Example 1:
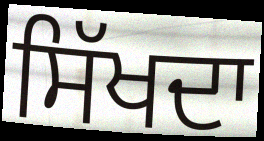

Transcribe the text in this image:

ਸਿੱਖਦਾ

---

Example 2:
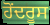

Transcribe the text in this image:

ਹੋਂਦਰੂਸ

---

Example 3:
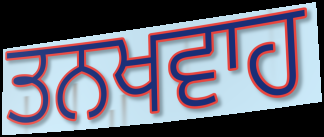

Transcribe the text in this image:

ਤਨਖਵਾਹ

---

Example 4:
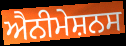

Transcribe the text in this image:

ਐਨੀਮੇਸ਼ਨਸ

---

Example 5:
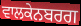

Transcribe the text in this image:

ਵਾਲਕੇਨਬਰਗ